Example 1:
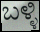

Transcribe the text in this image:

ಬಳ್ಳಿ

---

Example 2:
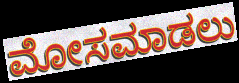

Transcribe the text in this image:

ಮೋಸಮಾಡಲು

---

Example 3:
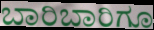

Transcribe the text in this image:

ಬಾರಿಬಾರಿಗೂ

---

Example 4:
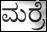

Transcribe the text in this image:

ಮರ್ರೆ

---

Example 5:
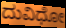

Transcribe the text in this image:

ದುವಿಧೋ